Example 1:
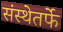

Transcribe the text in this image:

संस्थेतर्फे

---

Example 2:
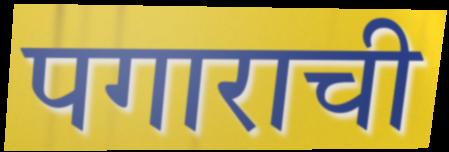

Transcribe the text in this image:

पगाराची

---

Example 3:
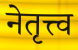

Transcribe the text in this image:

नेतृत्त्व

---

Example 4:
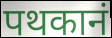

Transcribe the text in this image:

पथकानं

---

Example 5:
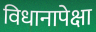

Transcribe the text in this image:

विधानापेक्षा